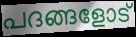
പദങ്ങളോട്